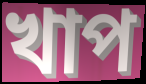
খাপ